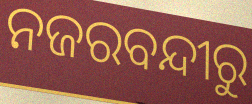
ନଜରବନ୍ଦୀରୁ